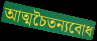
আত্মচৈতন্যবোধ